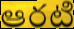
ఆరటి